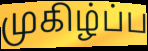
முகிழ்ப்ப